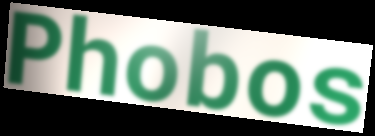
Phobos